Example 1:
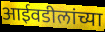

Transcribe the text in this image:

आईवडीलांच्या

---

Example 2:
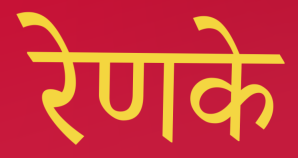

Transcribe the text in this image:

रेणके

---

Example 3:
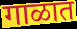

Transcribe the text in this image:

गाळात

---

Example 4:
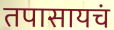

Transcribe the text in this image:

तपासायचं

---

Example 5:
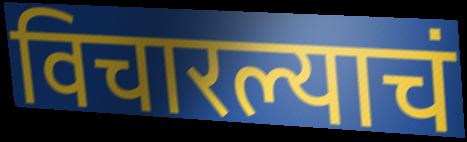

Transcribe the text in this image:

विचारल्याचं